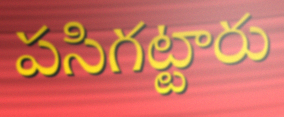
పసిగట్టారు